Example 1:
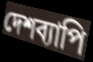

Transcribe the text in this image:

দেশব্যাপি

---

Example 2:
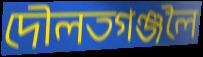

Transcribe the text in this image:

দৌলতগঞ্জলৈ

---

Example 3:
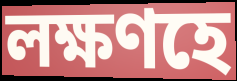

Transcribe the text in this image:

লক্ষণহে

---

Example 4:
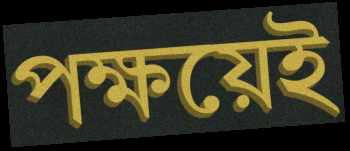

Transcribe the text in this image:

পক্ষয়েই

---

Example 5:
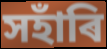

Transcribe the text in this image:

সহাঁৰি